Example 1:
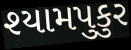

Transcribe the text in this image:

શ્યામપુકુર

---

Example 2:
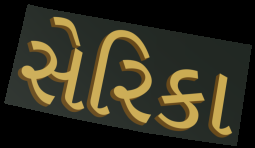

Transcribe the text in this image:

સેરિકા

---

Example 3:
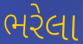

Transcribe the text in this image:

ભરેલા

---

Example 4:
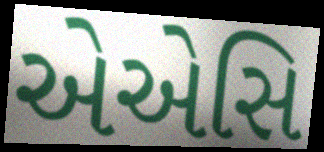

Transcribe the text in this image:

એએસિ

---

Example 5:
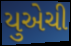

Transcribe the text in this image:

યુએચી